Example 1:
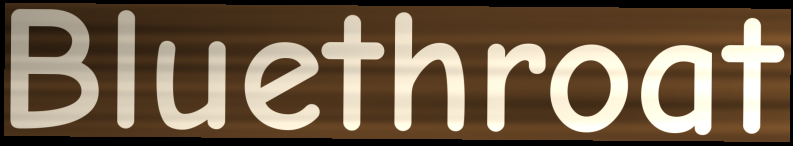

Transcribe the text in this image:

Bluethroat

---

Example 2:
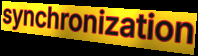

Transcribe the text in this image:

synchronization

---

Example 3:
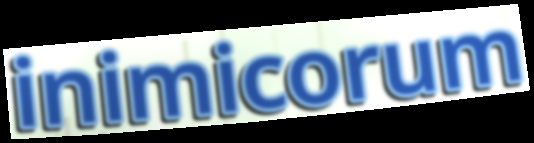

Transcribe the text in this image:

inimicorum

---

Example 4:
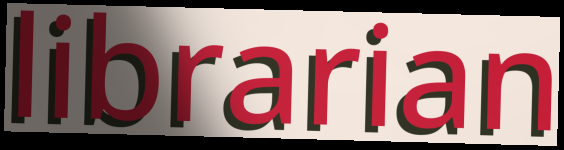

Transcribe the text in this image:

librarian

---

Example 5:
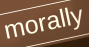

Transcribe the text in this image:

morally